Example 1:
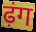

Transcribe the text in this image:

ढ़ंग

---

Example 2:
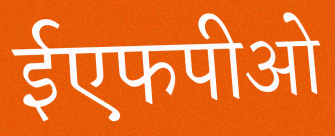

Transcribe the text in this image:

ईएफपीओ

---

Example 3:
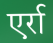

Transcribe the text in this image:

एर्रा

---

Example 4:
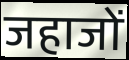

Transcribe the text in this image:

जहाजों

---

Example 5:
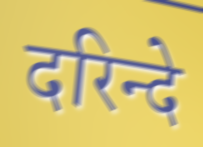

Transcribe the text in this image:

दरिन्दे